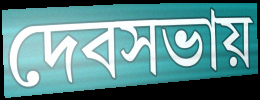
দেবসভায়